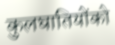
कुलघातियोंको